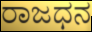
ರಾಜಧನ